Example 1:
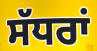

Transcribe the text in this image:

ਸੱਧਰਾਂ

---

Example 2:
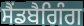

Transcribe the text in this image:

ਸੈਂਡਬੈਗਿੰਗ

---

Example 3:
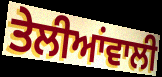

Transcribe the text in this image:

ਤੇਲੀਆਂਵਾਲੀ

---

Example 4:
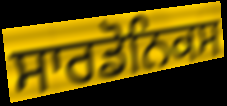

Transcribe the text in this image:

ਸਾਰਡੋਨਿਕਸ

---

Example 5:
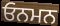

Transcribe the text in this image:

ਓਨਮਨ